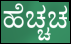
ಹೆಚ್ಚಚ